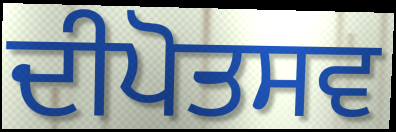
ਦੀਪੋਤਸਵ